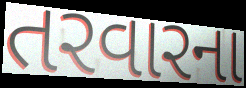
તરવારના